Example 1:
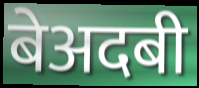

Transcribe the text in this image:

बेअदबी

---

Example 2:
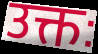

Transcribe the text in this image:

उक्तः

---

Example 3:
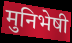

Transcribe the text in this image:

मुनिभेषी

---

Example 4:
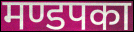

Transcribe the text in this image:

मण्डपका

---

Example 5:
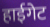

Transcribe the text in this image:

हाईगेट